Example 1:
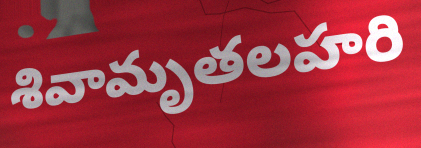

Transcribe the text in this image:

శివామృతలహరి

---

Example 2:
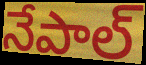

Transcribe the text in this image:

నేపాల్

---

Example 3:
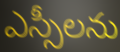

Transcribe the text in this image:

ఎస్సీలను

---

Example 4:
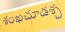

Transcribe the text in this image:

శంఖచూడశ్చ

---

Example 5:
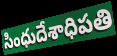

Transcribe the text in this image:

సింధుదేశాధిపతి